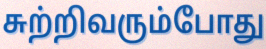
சுற்றிவரும்போது